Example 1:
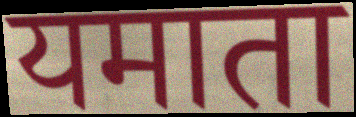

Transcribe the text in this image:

यमाता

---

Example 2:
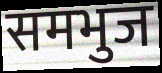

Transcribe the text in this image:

समभुज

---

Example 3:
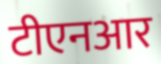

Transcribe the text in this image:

टीएनआर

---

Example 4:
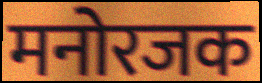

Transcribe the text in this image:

मनोरजक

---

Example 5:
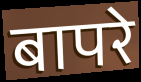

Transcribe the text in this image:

बापरे